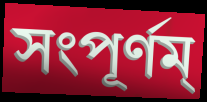
সংপূর্ণম্